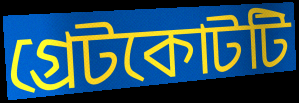
গ্রেটকোটটি